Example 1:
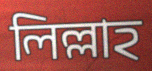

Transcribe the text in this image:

লিল্লাহ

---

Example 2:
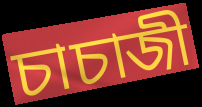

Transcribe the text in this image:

চাচাজী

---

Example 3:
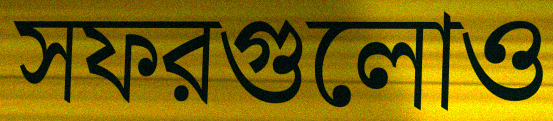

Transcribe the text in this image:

সফরগুলোও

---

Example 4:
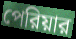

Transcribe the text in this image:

পেরিয়ার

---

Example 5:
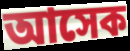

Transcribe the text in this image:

আসেক